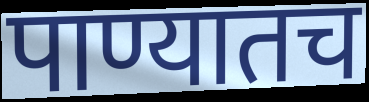
पाण्यातच